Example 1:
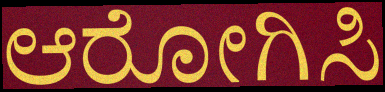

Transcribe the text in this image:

ಆರೋಗಿಸಿ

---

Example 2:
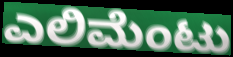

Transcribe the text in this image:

ಎಲಿಮೆಂಟು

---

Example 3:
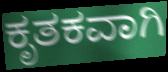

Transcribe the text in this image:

ಕೃತಕವಾಗಿ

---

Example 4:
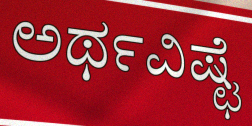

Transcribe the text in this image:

ಅರ್ಥವಿಷ್ಟೆ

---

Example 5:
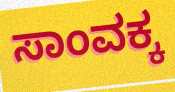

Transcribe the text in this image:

ಸಾಂವಕ್ಕ